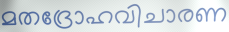
മതദ്രോഹവിചാരണ